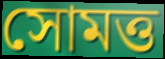
সোমত্ত